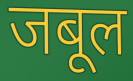
जबूल